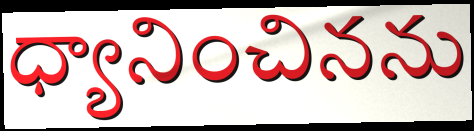
ధ్యానించినను